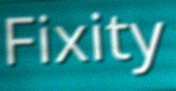
Fixity